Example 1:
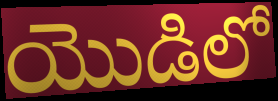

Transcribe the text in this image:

యొడిలో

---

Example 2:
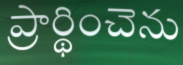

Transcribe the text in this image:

ప్రార్థించెను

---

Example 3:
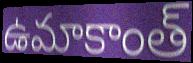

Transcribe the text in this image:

ఉమాకాంత్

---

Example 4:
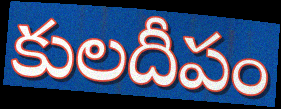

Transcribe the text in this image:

కులదీపం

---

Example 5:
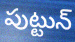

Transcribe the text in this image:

పుట్టున్